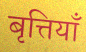
बृत्तियाँ